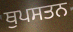
ਥੁਪਸਤਨ